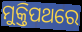
ମୁକ୍ତିପଥରେ